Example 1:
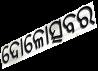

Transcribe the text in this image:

ଦୋଳୋତ୍ସବର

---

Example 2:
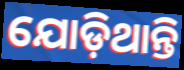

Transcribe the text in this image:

ଯୋଡ଼ିଥାନ୍ତି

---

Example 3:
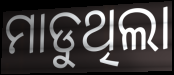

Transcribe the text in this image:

ମାଡୁଥିଲା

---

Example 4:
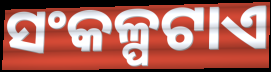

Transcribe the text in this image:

ସଂକଳ୍ପଟାଏ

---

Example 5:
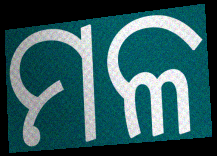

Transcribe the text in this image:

ମଳ